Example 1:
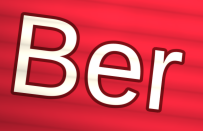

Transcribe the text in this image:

Ber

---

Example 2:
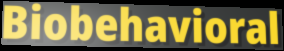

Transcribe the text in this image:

Biobehavioral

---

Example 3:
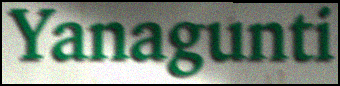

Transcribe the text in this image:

Yanagunti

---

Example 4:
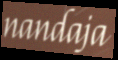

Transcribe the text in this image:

nandaja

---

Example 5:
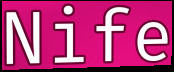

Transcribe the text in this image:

Nife